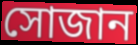
সোজান